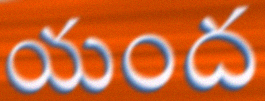
యంద